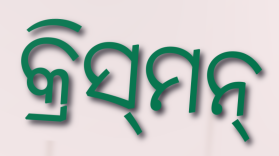
କ୍ରିସ୍‍ମନ୍